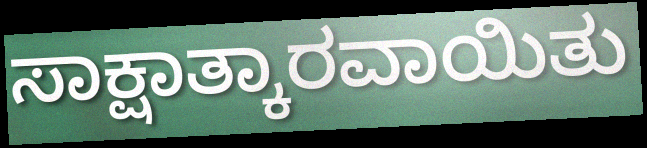
ಸಾಕ್ಷಾತ್ಕಾರವಾಯಿತು